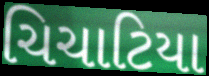
ચિચાટિયા